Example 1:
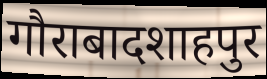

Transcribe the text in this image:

गौराबादशाहपुर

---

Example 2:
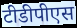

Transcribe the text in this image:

टीडीपीएस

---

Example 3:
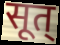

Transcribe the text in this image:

सूत्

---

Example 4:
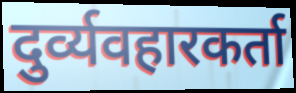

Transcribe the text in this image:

दुर्व्यवहारकर्ता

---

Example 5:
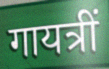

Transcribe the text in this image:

गायत्रीं